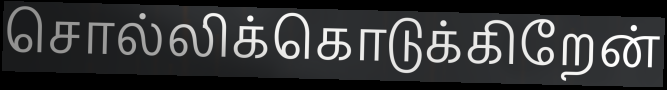
சொல்லிக்கொடுக்கிறேன்